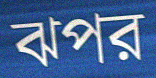
ঝপর